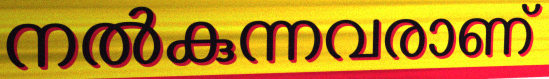
നൽകുന്നവരാണ്